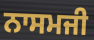
ਨਾਸਮਜੀ